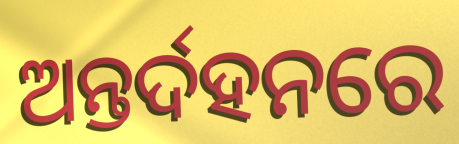
ଅନ୍ତର୍ଦହନରେ